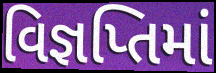
વિજ્ઞપ્તિમાં